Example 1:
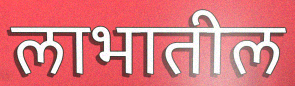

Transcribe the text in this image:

लाभातील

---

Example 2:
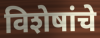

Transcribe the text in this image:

विशेषांचे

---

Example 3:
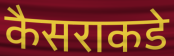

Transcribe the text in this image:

कैसराकडे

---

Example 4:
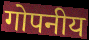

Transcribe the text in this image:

गोपनीय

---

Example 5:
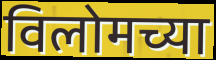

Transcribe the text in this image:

विलोमच्या